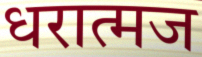
धरात्मज